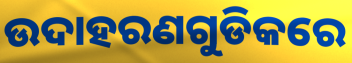
ଉଦାହରଣଗୁଡିକରେ